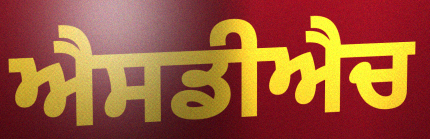
ਐਸਡੀਐਚ